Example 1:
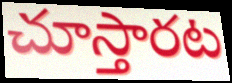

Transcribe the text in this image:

చూస్తారట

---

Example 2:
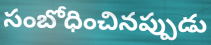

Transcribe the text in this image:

సంబోధించినప్పుడు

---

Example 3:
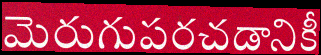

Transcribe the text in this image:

మెరుగుపరచడానికీ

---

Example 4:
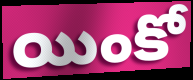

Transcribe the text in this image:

యింకో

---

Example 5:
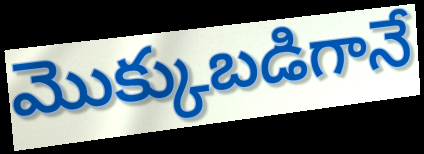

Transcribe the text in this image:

మొక్కుబడిగానే